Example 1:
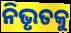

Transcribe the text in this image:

ନିଭୃତକୁ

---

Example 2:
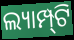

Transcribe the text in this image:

ଲ୍ୟାମ୍ପ୍‍ଟି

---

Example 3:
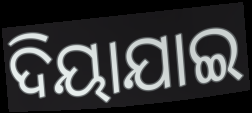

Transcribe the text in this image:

ଦିୟାଯାଇ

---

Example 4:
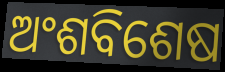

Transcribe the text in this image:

ଅଂଶବିଶେଷ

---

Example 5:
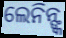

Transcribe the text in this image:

ଲେନିନ୍ଙ୍କ